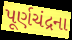
પૂર્ણચંદ્રના